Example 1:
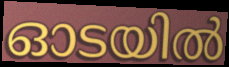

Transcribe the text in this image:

ഓടയിൽ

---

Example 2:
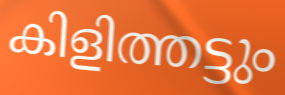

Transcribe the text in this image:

കിളിത്തട്ടും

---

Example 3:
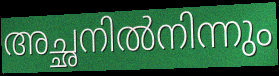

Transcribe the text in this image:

അച്ഛനിൽനിന്നും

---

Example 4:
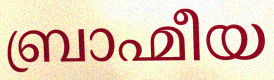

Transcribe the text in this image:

ബ്രാഹ്മീയ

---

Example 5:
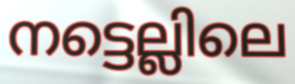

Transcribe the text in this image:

നട്ടെല്ലിലെ